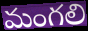
మంగలి